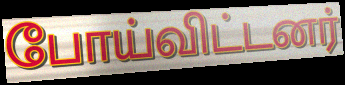
போய்விட்டனர்